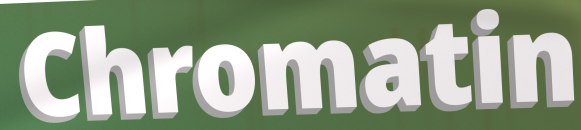
Chromatin